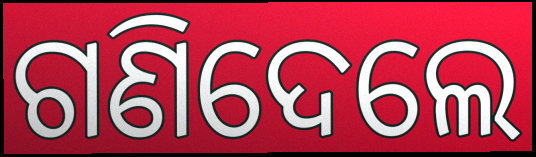
ଗଣିଦେଲେ